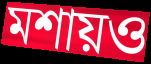
মশায়ও